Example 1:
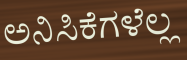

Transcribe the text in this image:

ಅನಿಸಿಕೆಗಳೆಲ್ಲ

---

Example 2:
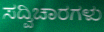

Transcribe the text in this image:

ಸದ್ವಿಚಾರಗಳು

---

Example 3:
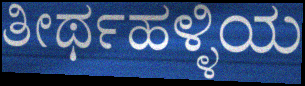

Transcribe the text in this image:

ತೀರ್ಥಹಳ್ಳಿಯ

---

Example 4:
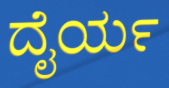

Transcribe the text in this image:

ದೈರ್ಯ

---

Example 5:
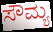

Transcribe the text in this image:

ಸೌಮ್ಯ